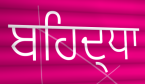
ਬਹਿਦ੍ਧਾ